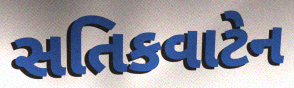
સતિકવાટેન